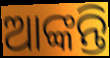
ଆଙ୍କନ୍ତି